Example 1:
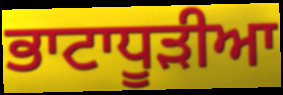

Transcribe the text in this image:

ਭਾਟਾਧੂੜੀਆ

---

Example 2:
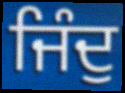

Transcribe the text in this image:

ਜਿੰਦੁ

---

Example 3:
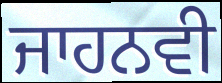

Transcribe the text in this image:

ਜਾਹਨਵੀ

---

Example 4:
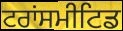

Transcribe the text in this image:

ਟਰਾਂਸਮੀਟਿਡ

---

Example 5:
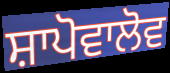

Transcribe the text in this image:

ਸ਼ਾਪੋਵਾਲੋਵ